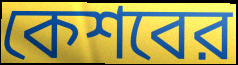
কেশবের